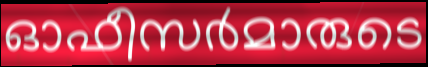
ഓഫീസർമാരുടെ